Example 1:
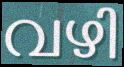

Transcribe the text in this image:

വഴി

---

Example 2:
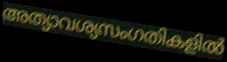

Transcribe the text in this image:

അത്യാവശ്യസംഗതികളിൽ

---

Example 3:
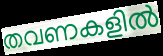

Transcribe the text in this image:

തവണകളിൽ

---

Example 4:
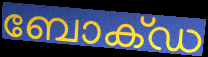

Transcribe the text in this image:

ബോക്ഡ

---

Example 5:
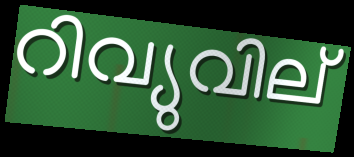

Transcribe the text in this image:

റിവ്യുവില്